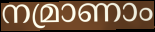
നമ്രാണാം